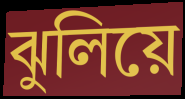
ঝুলিয়ে